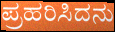
ಪ್ರಹರಿಸಿದನು